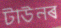
টাউনৰ